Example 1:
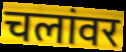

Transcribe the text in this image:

चलांवर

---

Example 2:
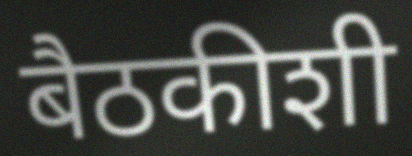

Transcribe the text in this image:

बैठकीशी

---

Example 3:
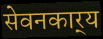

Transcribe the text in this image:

सेवनकार्य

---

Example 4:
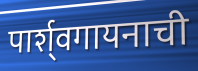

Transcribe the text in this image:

पार्श्वगायनाची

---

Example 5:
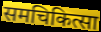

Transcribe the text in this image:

समचिकित्सा